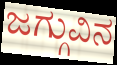
ಜಗ್ಗುವಿನ